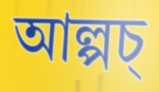
আল্পচ্